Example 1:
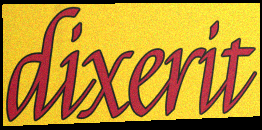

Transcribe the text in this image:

dixerit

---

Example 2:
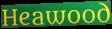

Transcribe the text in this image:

Heawood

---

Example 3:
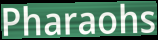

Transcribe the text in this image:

Pharaohs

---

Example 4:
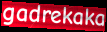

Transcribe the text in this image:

gadrekaka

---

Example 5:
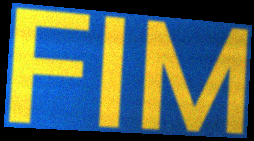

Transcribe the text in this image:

FIM